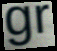
gr